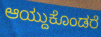
ಆಯ್ದುಕೊಂಡರೆ